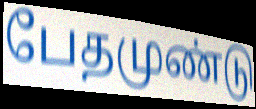
பேதமுண்டு